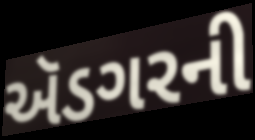
ઍડગરની